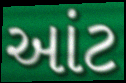
આંટ